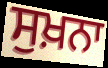
ਸੁਖ਼ਨਾ